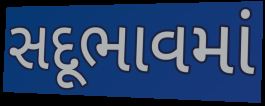
સદૂભાવમાં